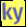
ky